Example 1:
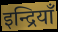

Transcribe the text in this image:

इन्द्रियाँ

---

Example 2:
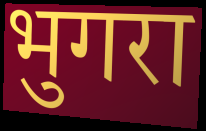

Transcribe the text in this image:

भुगरा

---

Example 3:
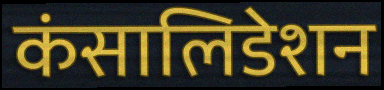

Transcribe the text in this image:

कंसालिडेशन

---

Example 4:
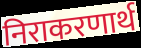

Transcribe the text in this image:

निराकरणार्थ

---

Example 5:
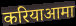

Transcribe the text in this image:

करियाआमा